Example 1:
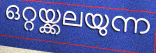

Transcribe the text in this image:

ഒറ്റയ്ക്കലയുന്ന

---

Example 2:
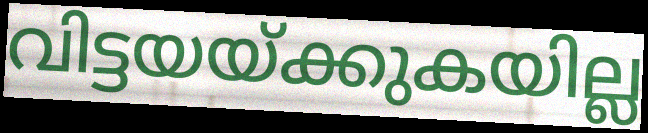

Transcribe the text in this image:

വിട്ടയയ്ക്കുകയില്ല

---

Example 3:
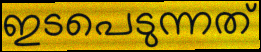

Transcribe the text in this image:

ഇടപെടുന്നത്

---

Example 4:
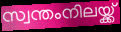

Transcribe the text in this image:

സ്വന്തംനിലയ്ക്ക്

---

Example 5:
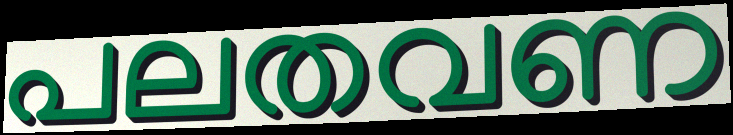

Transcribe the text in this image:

പലതവണ